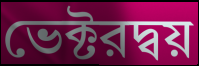
ভেক্টরদ্বয়